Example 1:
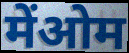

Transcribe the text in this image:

मेंओम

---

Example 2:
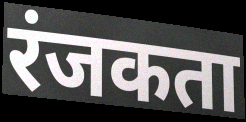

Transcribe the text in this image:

रंजकता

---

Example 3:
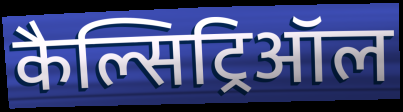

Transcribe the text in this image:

कैल्सिट्रिऑल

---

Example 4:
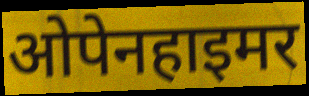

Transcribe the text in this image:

ओपेनहाइमर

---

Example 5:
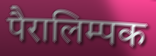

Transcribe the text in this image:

पैरालिम्पक